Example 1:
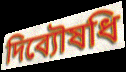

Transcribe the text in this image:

দিব্যৌষধি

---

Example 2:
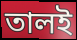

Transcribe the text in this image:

তালই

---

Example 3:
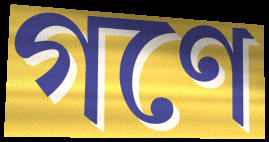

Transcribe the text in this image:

গণে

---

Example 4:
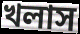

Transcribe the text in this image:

খলাস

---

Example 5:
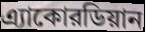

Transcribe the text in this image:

এ্যাকোরডিয়ান